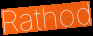
Rathod